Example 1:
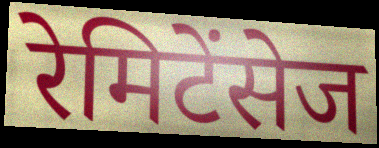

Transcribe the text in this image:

रेमिटेंसेज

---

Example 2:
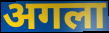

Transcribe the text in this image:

अगला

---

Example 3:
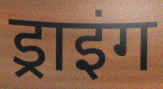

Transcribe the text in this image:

ड्राइंग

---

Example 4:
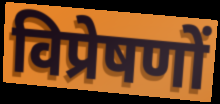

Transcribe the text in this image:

विप्रेषणों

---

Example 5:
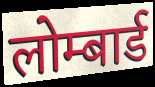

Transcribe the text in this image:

लोम्बार्ड